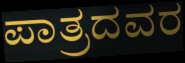
ಪಾತ್ರದವರ